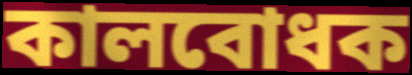
কালবোধক